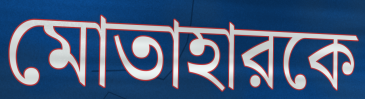
মোতাহারকে